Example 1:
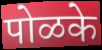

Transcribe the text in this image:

पोळके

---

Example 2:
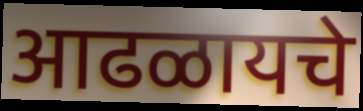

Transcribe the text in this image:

आढळायचे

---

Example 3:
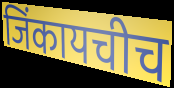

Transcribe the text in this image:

जिंकायचीच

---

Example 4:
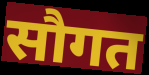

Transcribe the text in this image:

सौगत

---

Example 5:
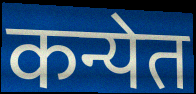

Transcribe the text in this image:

कन्येत